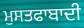
ਮੁਸਤਫਾਬਾਦੀ